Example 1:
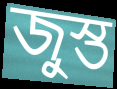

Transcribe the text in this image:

জুস্ত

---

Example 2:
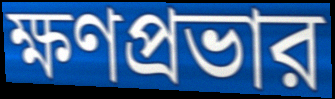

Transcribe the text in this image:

ক্ষণপ্রভার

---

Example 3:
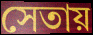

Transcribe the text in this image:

সেতায়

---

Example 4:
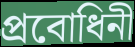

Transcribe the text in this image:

প্রবোধিনী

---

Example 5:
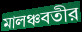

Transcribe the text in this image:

মালঞ্চবতীর